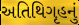
અતિથિગૃહનું